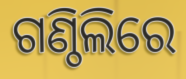
ଗଣ୍ଠିଲିରେ